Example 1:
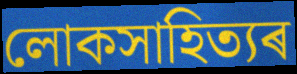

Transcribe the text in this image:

লোকসাহিত্যৰ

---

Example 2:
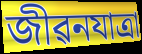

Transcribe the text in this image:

জীৱনযাত্ৰা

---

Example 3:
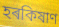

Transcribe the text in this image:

হৰকিষাণ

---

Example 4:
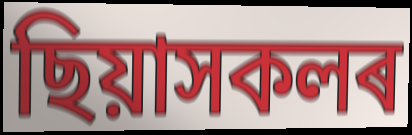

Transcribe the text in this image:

ছিয়াসকলৰ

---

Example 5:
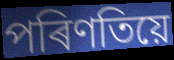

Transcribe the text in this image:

পৰিণতিয়ে